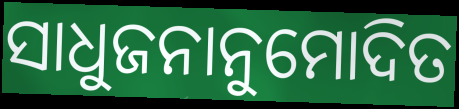
ସାଧୁଜନାନୁମୋଦିତ